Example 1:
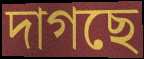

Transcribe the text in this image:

দাগছে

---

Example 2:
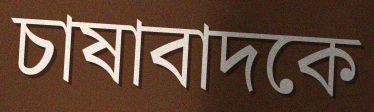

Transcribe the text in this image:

চাষাবাদকে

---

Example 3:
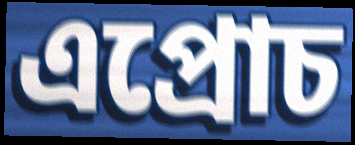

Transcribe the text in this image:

এপ্রোচ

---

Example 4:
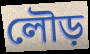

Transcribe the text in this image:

লৌড়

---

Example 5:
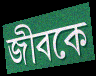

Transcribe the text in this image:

জীবকে